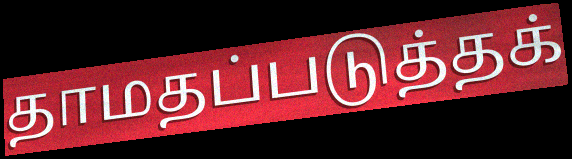
தாமதப்படுத்தக்